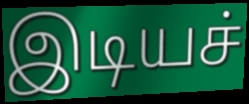
இடியச்